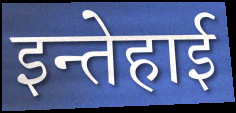
इन्तेहाई